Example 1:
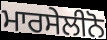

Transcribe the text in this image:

ਮਾਰਸੇਲੀਨੋ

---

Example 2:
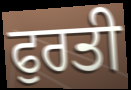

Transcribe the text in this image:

ਫੁਰਤੀ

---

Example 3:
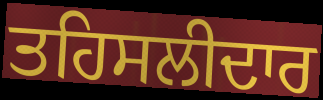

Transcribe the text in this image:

ਤਹਿਸਲੀਦਾਰ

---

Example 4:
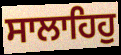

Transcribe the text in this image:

ਸਾਲਾਹਿਹੁ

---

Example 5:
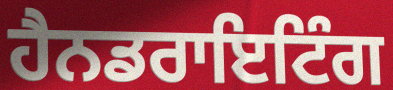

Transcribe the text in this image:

ਹੈਨਡਰਾਇਟਿੰਗ